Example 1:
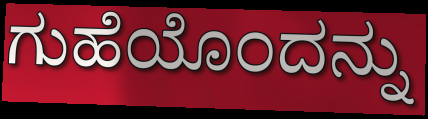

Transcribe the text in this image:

ಗುಹೆಯೊಂದನ್ನು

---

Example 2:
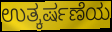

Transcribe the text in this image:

ಉತ್ಕರ್ಷಣೆಯ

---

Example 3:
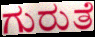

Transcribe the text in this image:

ಗುರುತೆ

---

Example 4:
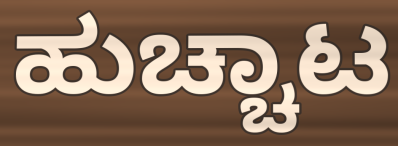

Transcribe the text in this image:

ಹುಚ್ಚಾಟ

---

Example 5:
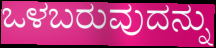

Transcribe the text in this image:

ಒಳಬರುವುದನ್ನು